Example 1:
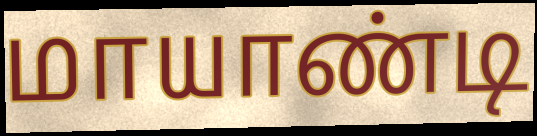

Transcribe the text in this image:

மாயாண்டி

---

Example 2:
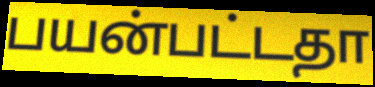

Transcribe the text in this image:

பயன்பட்டதா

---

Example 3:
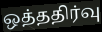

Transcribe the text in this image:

ஒத்ததிர்வு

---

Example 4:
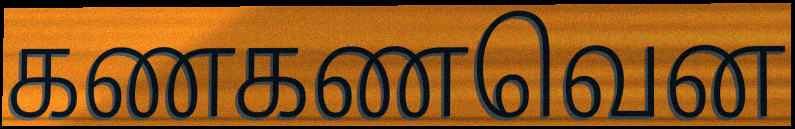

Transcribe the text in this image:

கணகணவென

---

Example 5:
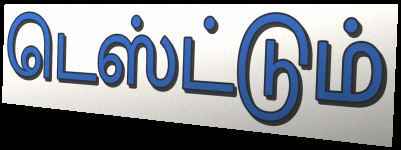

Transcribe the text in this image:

டெஸ்ட்டும்